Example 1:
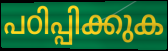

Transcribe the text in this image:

പഠിപ്പിക്കുക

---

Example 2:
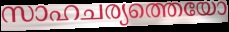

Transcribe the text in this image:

സാഹചര്യത്തെയോ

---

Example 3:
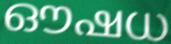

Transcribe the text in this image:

ഔഷധ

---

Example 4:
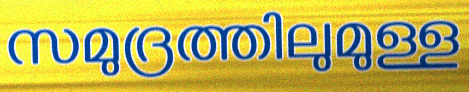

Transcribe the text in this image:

സമുദ്രത്തിലുമുള്ള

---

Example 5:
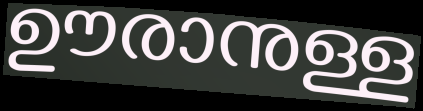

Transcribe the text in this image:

ഊരാനുള്ള